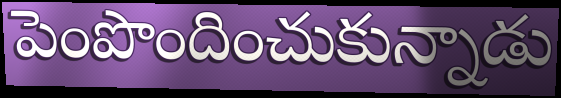
పెంపొందించుకున్నాడు